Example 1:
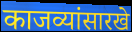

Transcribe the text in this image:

काजव्यांसारखे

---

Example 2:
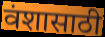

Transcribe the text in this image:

वंशासाठी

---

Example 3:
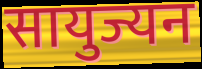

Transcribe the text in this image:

सायुज्यन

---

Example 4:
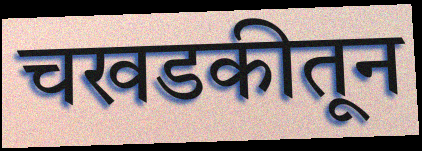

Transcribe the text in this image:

चखडकीतून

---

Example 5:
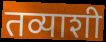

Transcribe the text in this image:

तव्याशी